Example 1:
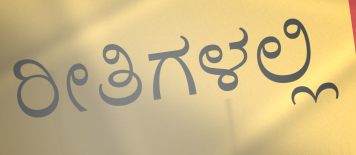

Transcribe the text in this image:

ರೀತಿಗಳಲ್ಲಿ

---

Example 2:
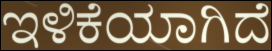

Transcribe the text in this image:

ಇಳಿಕೆಯಾಗಿದೆ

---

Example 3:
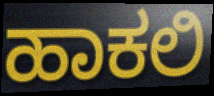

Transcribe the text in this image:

ಹಾಕಲಿ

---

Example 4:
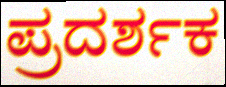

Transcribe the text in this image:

ಪ್ರದರ್ಶಕ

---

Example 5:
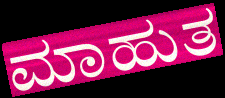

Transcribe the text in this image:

ಮಾಹುತ